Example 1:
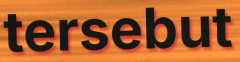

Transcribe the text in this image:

tersebut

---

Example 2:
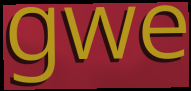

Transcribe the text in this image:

gwe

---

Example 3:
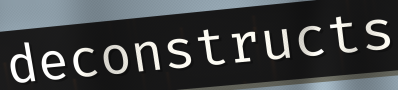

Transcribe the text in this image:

deconstructs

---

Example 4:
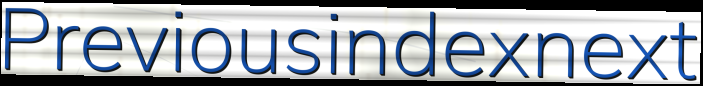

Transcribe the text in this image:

Previousindexnext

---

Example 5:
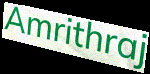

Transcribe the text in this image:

Amrithraj